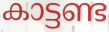
കാട്ടണ്ട